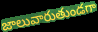
జాలువారుతుండగా